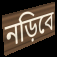
নড়িবে